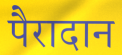
पैरादान